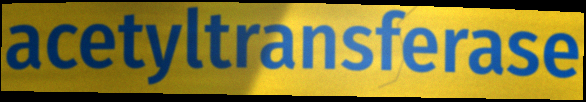
acetyltransferase